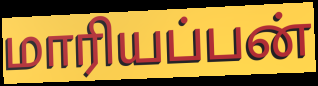
மாரியப்பன்